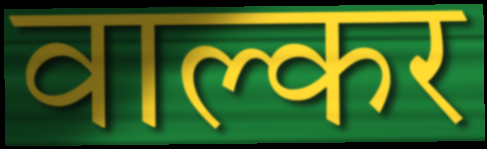
वाल्कर